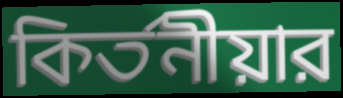
কির্তনীয়ার